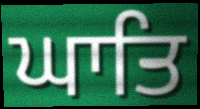
ਘਾਤਿ